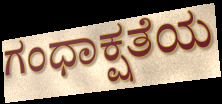
ಗಂಧಾಕ್ಷತೆಯ